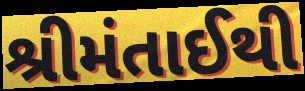
શ્રીમંતાઈથી